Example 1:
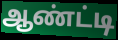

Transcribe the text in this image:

ஆண்ட்டி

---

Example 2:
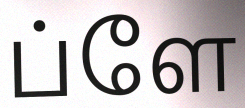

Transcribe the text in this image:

ப்ளே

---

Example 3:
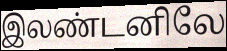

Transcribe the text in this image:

இலண்டனிலே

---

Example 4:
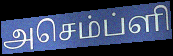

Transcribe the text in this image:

அசெம்ப்ளி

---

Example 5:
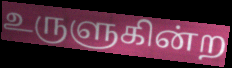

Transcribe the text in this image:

உருளுகின்ற